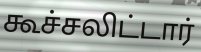
கூச்சலிட்டார்